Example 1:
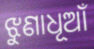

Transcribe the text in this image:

ଝୁଣାଧୂଆଁ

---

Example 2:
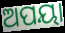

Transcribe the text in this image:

ଅପୟା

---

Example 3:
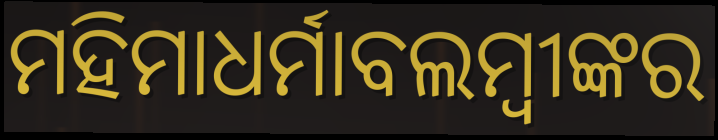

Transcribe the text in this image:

ମହିମାଧର୍ମାବଲମ୍ବୀଙ୍କର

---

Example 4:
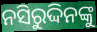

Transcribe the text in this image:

ନସିରୁଦ୍ଦିନଙ୍କୁ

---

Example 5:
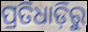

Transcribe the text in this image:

ପ୍ରତିଧାଡ଼ିରୁ